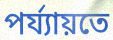
পৰ্য্যায়তে